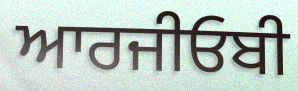
ਆਰਜੀਓਬੀ